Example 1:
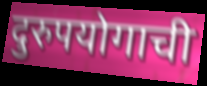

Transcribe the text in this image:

दुरुपयोगाची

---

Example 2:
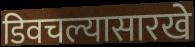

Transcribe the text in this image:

डिवचल्यासारखे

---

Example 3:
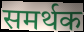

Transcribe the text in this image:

समर्थक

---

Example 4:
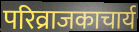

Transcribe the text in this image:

परिव्राजकाचार्य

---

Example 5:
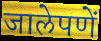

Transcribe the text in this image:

जालेपणें